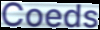
Coeds